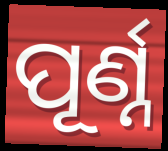
ପୂର୍ଣ୍ନ